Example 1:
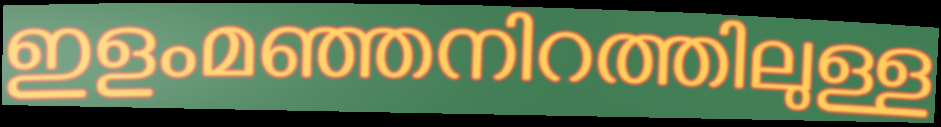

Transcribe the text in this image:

ഇളംമഞ്ഞനിറത്തിലുള്ള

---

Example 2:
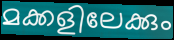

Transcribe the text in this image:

മക്കളിലേക്കും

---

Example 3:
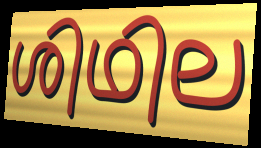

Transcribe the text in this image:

ശിഥില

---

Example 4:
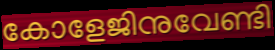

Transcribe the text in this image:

കോളേജിനുവേണ്ടി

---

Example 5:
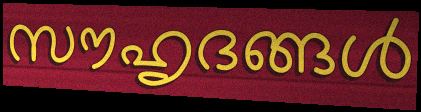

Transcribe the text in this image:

സൗഹൃദങ്ങൾ